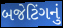
બજેટિંગનું